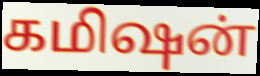
கமிஷன்